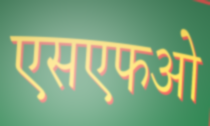
एसएफओ